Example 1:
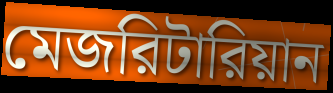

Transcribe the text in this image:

মেজরিটারিয়ান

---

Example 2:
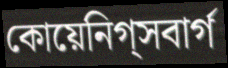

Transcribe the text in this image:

কোয়েনিগ্সবার্গ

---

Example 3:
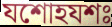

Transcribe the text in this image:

যশোহযশঃ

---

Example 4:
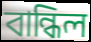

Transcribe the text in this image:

বান্ধিল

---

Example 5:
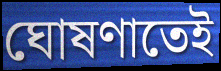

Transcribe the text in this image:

ঘোষণাতেই